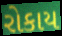
રોકાય